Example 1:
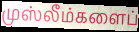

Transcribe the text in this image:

முஸ்லீம்களைப்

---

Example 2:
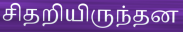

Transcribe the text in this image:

சிதறியிருந்தன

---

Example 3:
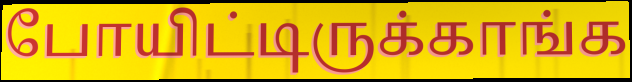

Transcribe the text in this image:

போயிட்டிருக்காங்க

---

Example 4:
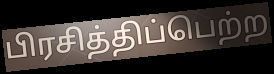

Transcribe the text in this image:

பிரசித்திப்பெற்ற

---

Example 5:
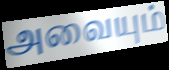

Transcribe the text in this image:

அவையும்